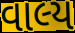
વાલ્ય